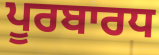
ਪੂਰਬਾਰਧ